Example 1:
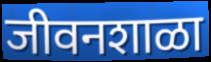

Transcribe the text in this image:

जीवनशाळा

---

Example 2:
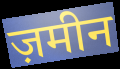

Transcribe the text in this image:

ज़मीन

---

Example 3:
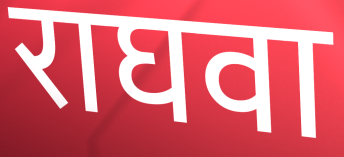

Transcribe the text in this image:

राघवा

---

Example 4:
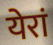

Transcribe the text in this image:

येरां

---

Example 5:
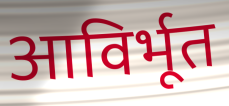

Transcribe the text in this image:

आविर्भूत